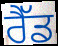
ਰੈੱਡ